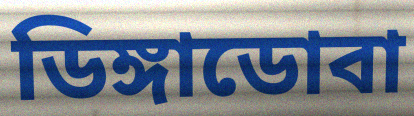
ডিঙ্গাডোবা